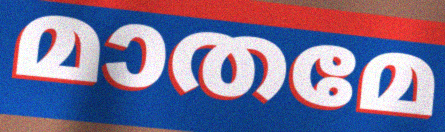
മാതമേ